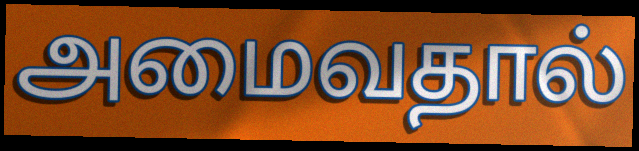
அமைவதால்